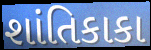
શાંતિકાકા